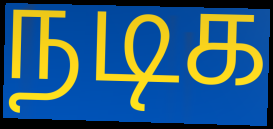
நடிக